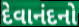
દેવાનંદનો